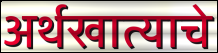
अर्थखात्याचे